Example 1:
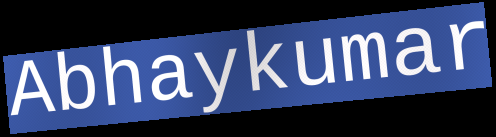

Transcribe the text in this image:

Abhaykumar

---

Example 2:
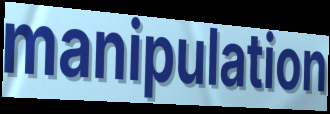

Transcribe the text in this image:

manipulation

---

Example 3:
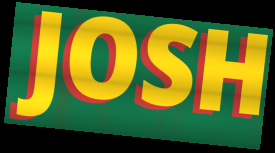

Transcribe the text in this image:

JOSH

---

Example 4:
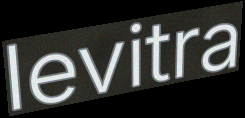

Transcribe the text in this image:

levitra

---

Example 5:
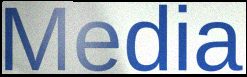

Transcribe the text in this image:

Media